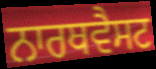
ਨਾਰਥਵੈਸਟ